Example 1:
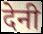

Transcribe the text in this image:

देनी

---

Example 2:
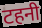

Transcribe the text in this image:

टहनी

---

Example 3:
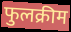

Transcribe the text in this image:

फुलक्रीम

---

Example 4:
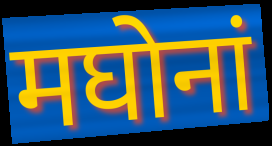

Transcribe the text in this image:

मघोनां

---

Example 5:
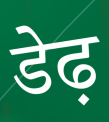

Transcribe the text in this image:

डेढ़